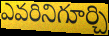
ఎవరినిగూర్చి